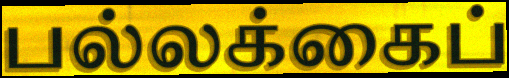
பல்லக்கைப்